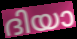
ദിയാ